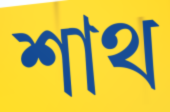
শাথ